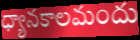
ధ్యానకాలమందు